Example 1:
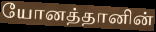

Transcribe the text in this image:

யோனத்தானின்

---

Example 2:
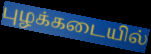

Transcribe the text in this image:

புழக்கடையில்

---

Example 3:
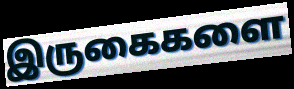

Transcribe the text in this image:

இருகைகளை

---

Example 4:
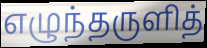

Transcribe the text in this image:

எழுந்தருளித்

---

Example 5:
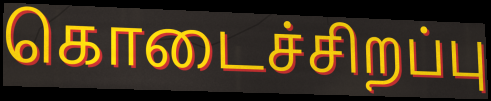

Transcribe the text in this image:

கொடைச்சிறப்பு